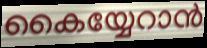
കൈയ്യേറാൻ